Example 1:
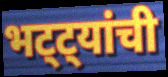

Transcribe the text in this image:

भट्ट्यांची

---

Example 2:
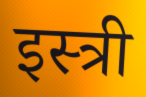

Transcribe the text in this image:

इस्त्री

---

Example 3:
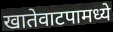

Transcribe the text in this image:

खातेवाटपामध्ये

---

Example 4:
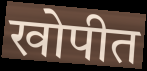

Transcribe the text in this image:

खोपीत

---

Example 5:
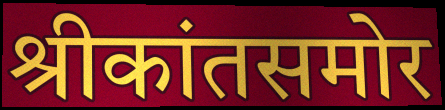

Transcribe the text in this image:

श्रीकांतसमोर